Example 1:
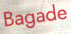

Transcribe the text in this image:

Bagade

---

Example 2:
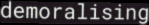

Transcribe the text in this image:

demoralising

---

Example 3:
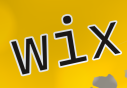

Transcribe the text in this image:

wix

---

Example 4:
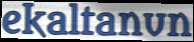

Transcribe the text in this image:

ekaltanun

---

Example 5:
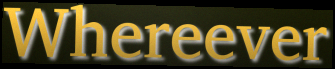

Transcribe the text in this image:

Whereever